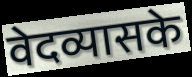
वेदव्यासके